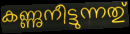
കണ്ണുനീട്ടുന്നതു്